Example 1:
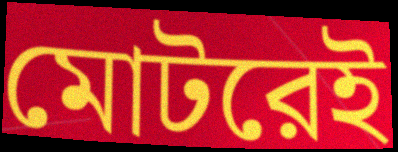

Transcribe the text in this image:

মোটরেই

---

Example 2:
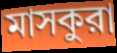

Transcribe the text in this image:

মাসকুরা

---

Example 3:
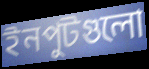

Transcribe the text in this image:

ইনপুটগুলো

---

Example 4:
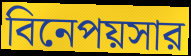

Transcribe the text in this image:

বিনেপয়সার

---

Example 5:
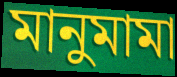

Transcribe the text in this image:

মানুমামা